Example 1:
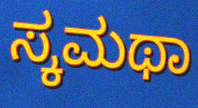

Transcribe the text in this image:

ಸ್ಕಮಥಾ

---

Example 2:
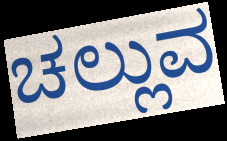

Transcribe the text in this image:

ಚಲ್ಲುವ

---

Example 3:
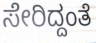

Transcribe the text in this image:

ಸೇರಿದ್ದಂತೆ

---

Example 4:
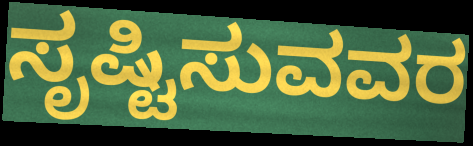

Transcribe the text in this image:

ಸೃಷ್ಟಿಸುವವರ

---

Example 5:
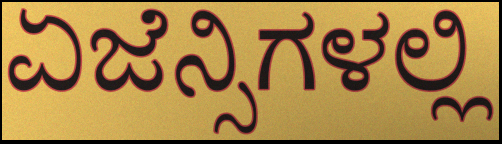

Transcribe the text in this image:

ಏಜೆನ್ಸಿಗಳಲ್ಲಿ